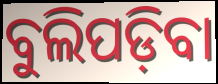
ବୁଲିପଡ଼ିବା